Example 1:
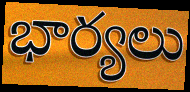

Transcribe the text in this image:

భార్యలు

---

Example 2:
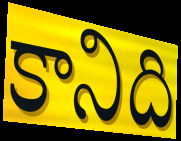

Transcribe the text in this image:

కానిది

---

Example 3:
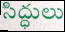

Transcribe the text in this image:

సిద్ధులు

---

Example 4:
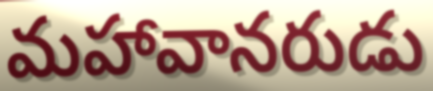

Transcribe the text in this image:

మహావానరుడు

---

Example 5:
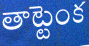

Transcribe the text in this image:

తాట్టెంక